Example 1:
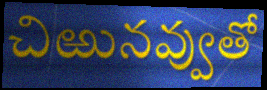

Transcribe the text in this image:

చిఱునవ్వుతో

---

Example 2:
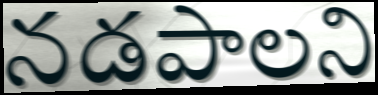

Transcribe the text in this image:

నడపాలని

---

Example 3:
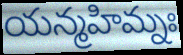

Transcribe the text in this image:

యన్మహిమ్నః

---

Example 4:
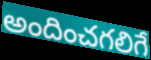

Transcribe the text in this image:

అందించగలిగే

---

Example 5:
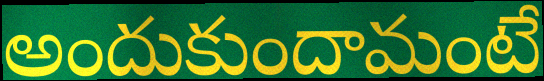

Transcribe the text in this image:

అందుకుందామంటే